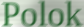
Polok